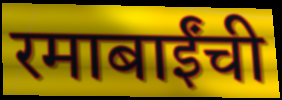
रमाबाईंची